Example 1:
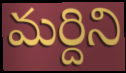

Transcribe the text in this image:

మర్దిని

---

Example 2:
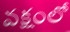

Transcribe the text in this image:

వక్షంలో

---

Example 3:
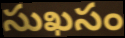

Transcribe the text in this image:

సుఖసం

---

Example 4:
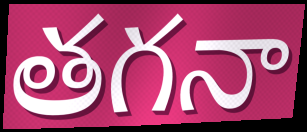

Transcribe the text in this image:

తగనా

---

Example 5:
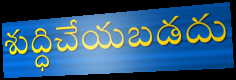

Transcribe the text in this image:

శుద్ధిచేయబడదు